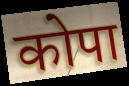
कोपा